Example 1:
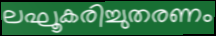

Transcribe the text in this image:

ലഘൂകരിച്ചുതരണം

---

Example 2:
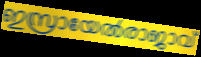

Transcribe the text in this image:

ഇസ്രായേൽരാജാവ്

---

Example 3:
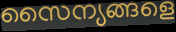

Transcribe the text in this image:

സൈന്യങ്ങളെ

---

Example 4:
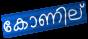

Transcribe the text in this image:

കോണില്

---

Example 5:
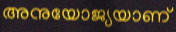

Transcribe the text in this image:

അനുയോജ്യയാണ്